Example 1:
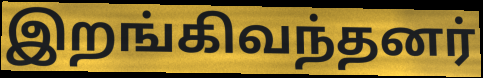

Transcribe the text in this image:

இறங்கிவந்தனர்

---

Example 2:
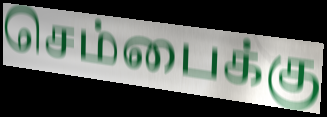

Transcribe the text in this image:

செம்பைக்கு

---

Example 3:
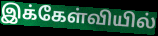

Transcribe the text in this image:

இக்கேள்வியில்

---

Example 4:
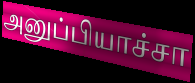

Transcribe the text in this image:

அனுப்பியாச்சா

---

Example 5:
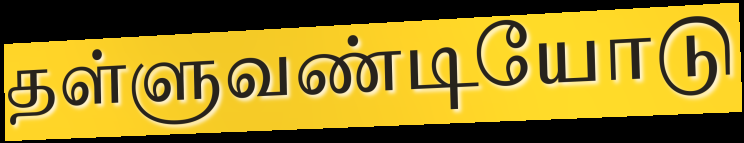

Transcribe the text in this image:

தள்ளுவண்டியோடு